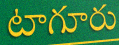
టాగూరు